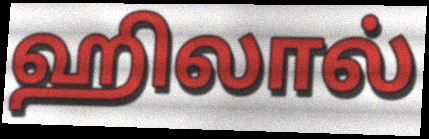
ஹிலால்